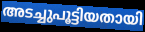
അടച്ചുപൂട്ടിയതായി